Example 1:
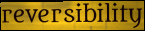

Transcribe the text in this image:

reversibility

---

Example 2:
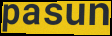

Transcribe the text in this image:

pasun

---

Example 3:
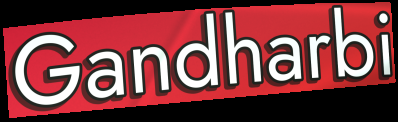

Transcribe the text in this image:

Gandharbi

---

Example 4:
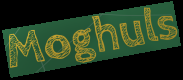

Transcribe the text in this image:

Moghuls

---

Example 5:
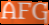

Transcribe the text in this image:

AFG